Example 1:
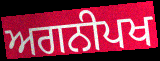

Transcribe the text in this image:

ਅਗਨੀਪਖ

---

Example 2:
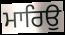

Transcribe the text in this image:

ਮਾਰਿਉ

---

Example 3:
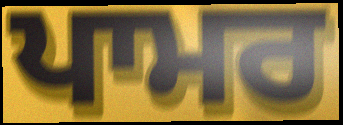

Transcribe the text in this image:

ਪਾਮਰ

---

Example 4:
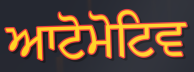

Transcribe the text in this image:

ਆਟੋਮੋਟਿਵ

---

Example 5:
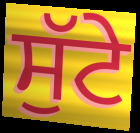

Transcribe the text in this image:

ਸੁੱਟੇ